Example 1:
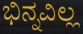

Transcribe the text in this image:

ಭಿನ್ನವಿಲ್ಲ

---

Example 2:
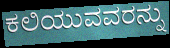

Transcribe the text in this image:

ಕಲಿಯುವವರನ್ನು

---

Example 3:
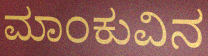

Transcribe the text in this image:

ಮಾಂಕುವಿನ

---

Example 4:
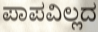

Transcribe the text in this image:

ಪಾಪವಿಲ್ಲದ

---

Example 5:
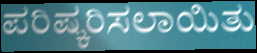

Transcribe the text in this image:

ಪರಿಷ್ಕರಿಸಲಾಯಿತು